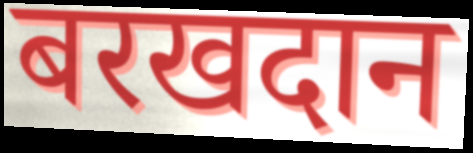
बरखदान